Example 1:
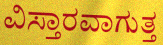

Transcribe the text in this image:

ವಿಸ್ತಾರವಾಗುತ್ತ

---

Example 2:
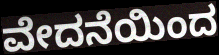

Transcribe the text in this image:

ವೇದನೆಯಿಂದ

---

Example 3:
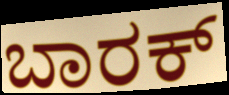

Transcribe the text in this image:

ಬಾರಕ್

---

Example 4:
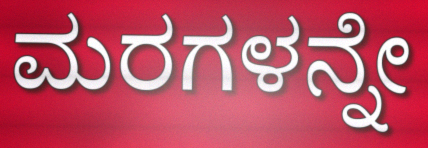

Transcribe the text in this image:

ಮರಗಳನ್ನೇ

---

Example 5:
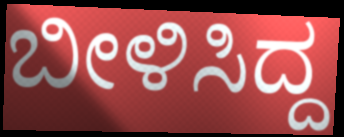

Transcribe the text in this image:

ಬೀಳಿಸಿದ್ದ